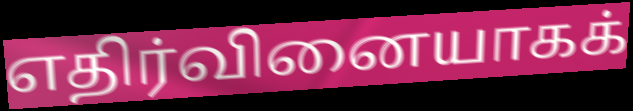
எதிர்வினையாகக்